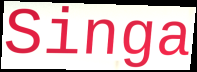
Singa